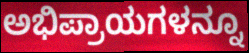
ಅಭಿಪ್ರಾಯಗಳನ್ನೂ